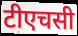
टीएचसी